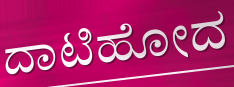
ದಾಟಿಹೋದ